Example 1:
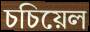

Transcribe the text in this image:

চচিয়েল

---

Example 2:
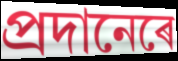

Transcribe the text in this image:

প্ৰদানেৰে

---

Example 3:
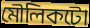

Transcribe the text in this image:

মৌলিকটো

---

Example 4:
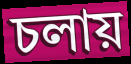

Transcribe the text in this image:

চলায়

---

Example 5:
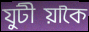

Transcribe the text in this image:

যুটীয়াকৈ